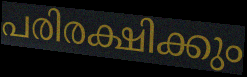
പരിരക്ഷിക്കും